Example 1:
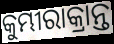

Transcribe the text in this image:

କୁମ୍ଭୀରାକ୍ରାନ୍ତ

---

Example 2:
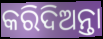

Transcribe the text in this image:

କରିଦିଅନ୍ତା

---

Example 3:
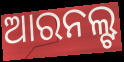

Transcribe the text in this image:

ଆରନଲ୍ଟ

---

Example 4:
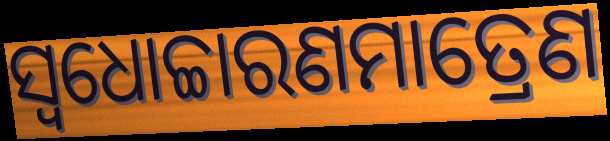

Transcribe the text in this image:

ସ୍ଵଧୋଚ୍ଚାରଣମାତ୍ରେଣ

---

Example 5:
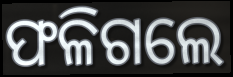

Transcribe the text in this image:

ଫଳିଗଲେ